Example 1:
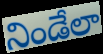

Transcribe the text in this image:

నిండేలా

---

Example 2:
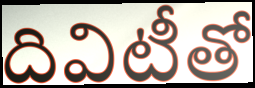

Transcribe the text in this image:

దివిటీతో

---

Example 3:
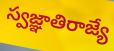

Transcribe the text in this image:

స్వజ్ఞాతిరాజ్యే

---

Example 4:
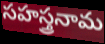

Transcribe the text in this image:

సహస్త్రనామ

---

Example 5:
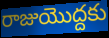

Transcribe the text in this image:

రాజుయొద్దకు